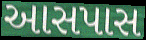
આસપાસ